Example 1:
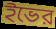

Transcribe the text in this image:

ইভের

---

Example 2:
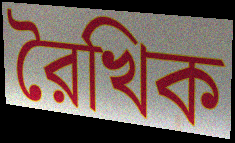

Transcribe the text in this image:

রৈখিক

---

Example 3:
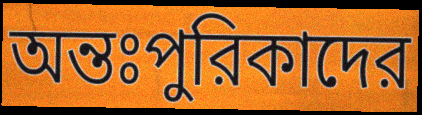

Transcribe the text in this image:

অন্তঃপুরিকাদের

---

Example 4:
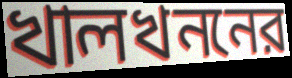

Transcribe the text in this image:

খালখননের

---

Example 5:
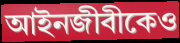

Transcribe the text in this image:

আইনজীবীকেও